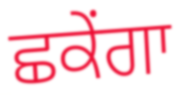
ਛਕੇਂਗਾ